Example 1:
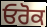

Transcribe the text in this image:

ਓਰੋਕ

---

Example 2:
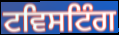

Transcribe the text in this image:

ਟਵਿਸਟਿੰਗ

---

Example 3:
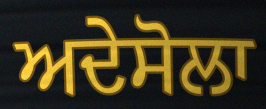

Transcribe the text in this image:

ਅਦੇਸੋਲਾ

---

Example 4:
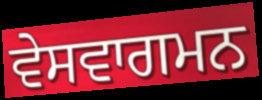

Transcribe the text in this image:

ਵੇਸਵਾਗਮਨ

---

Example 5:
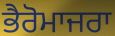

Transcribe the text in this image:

ਭੈਰੋਮਾਜਰਾ